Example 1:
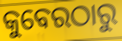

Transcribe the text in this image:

କୁବେରଠାରୁ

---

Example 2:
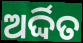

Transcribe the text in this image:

ଅର୍ଦ୍ଦିତ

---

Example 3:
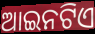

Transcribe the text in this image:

ଆଇନଟିଏ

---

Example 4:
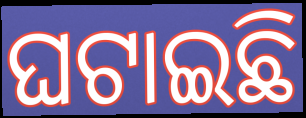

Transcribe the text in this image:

ଘଟାଇଛି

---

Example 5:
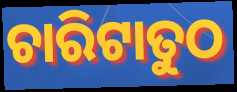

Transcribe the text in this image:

ଚାରିଟାତୁଠ